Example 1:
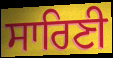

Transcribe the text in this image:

ਸਾਰਿਣੀ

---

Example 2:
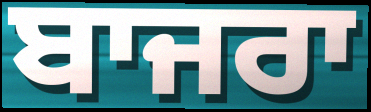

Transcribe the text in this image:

ਬਾਜਰਾ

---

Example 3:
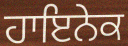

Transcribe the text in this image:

ਹਾਇਨੇਕ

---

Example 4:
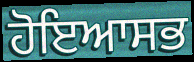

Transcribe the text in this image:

ਹੋਇਆਸਭ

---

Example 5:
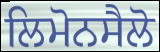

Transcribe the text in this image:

ਲਿਮੋਨਸੈਲੋ